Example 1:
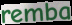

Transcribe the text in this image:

remba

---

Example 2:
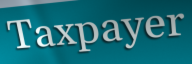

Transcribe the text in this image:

Taxpayer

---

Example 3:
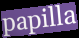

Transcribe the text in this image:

papilla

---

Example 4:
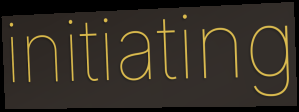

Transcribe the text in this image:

initiating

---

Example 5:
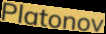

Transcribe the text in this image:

Platonov